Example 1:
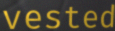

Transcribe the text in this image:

vested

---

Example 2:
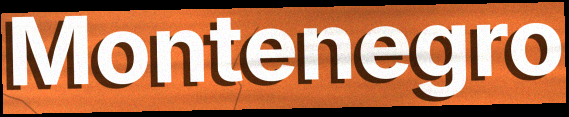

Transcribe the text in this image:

Montenegro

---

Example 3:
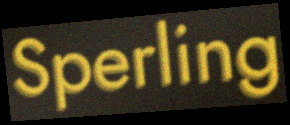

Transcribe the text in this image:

Sperling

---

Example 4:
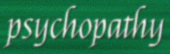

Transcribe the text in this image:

psychopathy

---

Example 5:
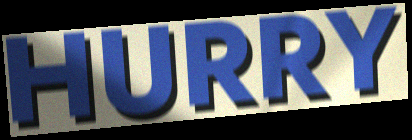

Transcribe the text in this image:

HURRY